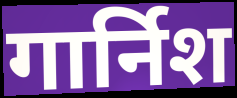
गार्निश